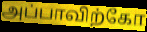
அப்பாவிற்கோ